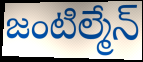
జంటిల్మేన్